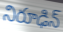
నిరూఢిన్